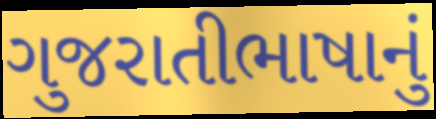
ગુજરાતીભાષાનું